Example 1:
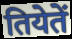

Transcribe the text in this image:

तियेतें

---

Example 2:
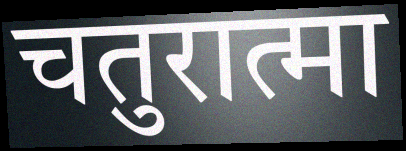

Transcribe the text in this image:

चतुरात्मा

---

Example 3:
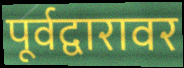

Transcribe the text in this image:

पूर्वद्वारावर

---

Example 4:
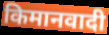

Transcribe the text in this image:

किमानवादी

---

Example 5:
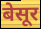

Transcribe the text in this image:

बेसूर